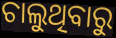
ଚାଲୁଥିବାରୁ